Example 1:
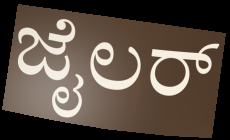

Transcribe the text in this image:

ಜೈಲರ್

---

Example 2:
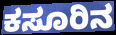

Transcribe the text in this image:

ಕಸೂರಿನ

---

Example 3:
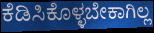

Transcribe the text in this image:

ಕೆಡಿಸಿಕೊಳ್ಳಬೇಕಾಗಿಲ್ಲ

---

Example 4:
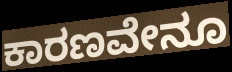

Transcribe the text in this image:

ಕಾರಣವೇನೂ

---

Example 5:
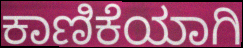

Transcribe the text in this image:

ಕಾಣಿಕೆಯಾಗಿ